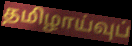
தமிழாய்வுப்